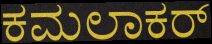
ಕಮಲಾಕರ್